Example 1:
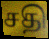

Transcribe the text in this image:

சதி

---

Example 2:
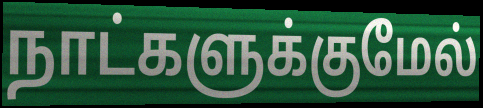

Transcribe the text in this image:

நாட்களுக்குமேல்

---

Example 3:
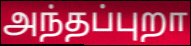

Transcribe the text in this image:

அந்தப்புறா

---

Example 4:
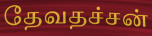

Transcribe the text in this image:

தேவதச்சன்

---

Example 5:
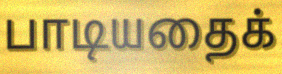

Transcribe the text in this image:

பாடியதைக்